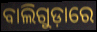
ବାଲିଗୁଡ଼ାରେ